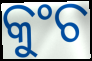
କୁଂଚ